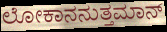
ಲೋಕಾನನುತ್ತಮಾನ್